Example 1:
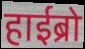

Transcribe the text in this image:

हाईब्रो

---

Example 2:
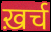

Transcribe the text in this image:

ख़र्च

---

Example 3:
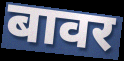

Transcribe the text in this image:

बावर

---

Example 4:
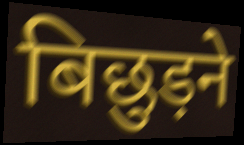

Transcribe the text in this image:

बिछुड़ने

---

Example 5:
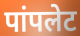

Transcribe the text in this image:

पांपलेट